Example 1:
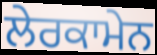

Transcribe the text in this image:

ਲੇਰਕਾਮੇਨ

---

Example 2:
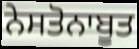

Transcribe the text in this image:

ਨੇਸਤੋਨਾਬੂਤ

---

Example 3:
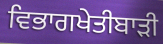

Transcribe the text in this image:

ਵਿਭਾਗਖੇਤੀਬਾੜੀ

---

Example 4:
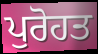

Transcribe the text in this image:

ਪੁਰੋਹਤ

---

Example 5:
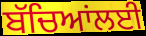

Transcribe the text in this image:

ਬੱਚਿਆਂਲਈ